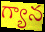
గ్యాన